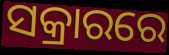
ସକ୍ରାରରେ